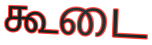
கூடை